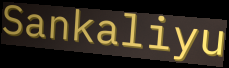
Sankaliyu